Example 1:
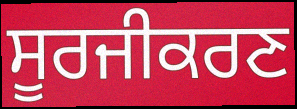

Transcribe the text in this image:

ਸੂਰਜੀਕਰਣ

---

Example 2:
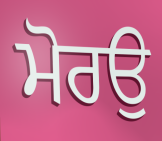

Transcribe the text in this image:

ਮੋਰਉ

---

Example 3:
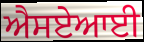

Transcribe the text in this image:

ਐਸਏਆਈ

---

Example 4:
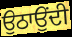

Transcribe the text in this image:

ਉਠਾਉਂਦੀ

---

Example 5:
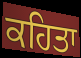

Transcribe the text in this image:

ਕਹਿਤਾ